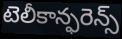
టెలీకాన్ఫరెన్స్